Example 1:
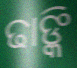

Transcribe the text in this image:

ଢାଙ୍କି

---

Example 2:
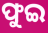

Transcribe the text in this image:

ଫୁଇ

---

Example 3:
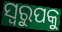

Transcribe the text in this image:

ସ୍ଵରୁପକୁ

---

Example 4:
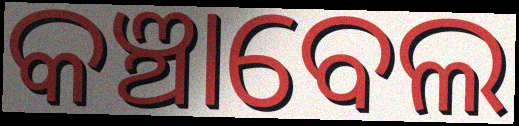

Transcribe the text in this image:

କଞ୍ଚାବେଲ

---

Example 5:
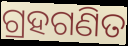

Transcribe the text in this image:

ଗ୍ରହଗଣିତ